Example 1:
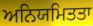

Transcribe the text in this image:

ਅਨਿਯਮਿਤਤਾ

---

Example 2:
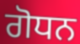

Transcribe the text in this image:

ਗੋਧਨ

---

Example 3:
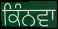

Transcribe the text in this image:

ਕਿੰਨਵਾ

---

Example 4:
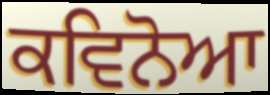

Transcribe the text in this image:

ਕਵਿਨੋਆ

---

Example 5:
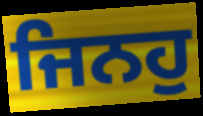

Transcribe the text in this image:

ਜਿਨਹੁ